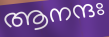
ആനന്ദഃ